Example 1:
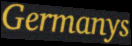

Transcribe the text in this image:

Germanys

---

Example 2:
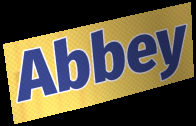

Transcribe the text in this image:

Abbey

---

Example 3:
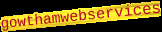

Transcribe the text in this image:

gowthamwebservices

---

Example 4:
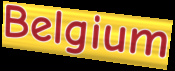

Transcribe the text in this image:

Belgium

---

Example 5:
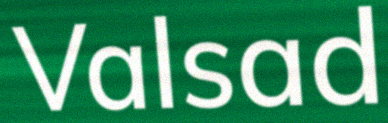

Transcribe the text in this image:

Valsad